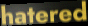
hatered